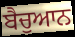
ਬੈਚੁਆਨ